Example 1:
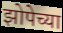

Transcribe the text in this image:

झोपेच्या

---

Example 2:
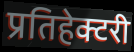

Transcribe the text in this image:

प्रतिहेक्टरी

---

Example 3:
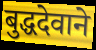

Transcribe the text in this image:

बुद्धदेवाने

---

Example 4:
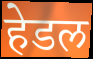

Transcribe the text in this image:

हेडल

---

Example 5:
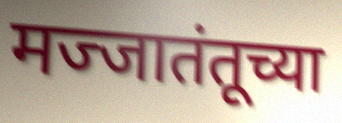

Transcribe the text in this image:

मज्जातंतूच्या